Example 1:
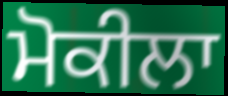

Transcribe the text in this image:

ਮੋਕੀਲਾ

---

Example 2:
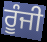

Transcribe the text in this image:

ਰੂੰਜੀ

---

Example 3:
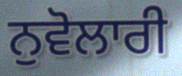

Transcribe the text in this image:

ਨੁਵੋਲਾਰੀ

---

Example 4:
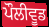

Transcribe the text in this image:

ਪੌਲੀਵੂਡ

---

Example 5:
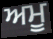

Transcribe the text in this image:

ਅਮੂ